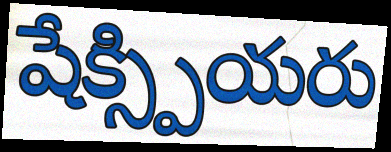
షేక్స్పియరు